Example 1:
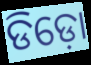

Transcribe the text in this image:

ଡିଡ଼ୋ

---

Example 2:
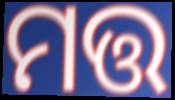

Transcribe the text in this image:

ମତ୍ତ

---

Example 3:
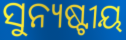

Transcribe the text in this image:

ସୁନ୍ୟଷ୍ଟୀୟ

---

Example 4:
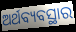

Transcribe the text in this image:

ଅର୍ଥବ୍ୟବସ୍ଥାର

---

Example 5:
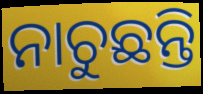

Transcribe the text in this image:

ନାଚୁଛନ୍ତି